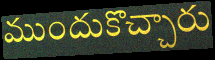
ముందుకొచ్చారు